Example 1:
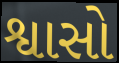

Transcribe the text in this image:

શ્વાસો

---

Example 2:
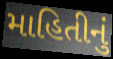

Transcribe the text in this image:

માહિતીનું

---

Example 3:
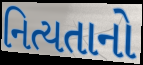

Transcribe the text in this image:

નિત્યતાનો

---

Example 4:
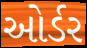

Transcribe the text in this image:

ઓર્ડર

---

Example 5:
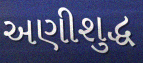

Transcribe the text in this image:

અણીશુદ્ધ